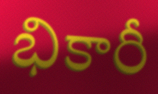
భికారీ